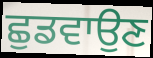
ਛੁਡਵਾਉਣ